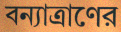
বন্যাত্রাণের